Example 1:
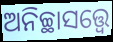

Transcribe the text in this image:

ଅନିଚ୍ଛାସତ୍ତ୍ବେ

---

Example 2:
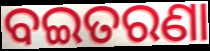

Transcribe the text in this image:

ବଇତରଣା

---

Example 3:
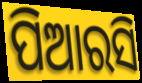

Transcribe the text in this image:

ପିଆରସି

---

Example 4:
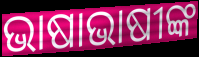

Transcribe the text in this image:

ଭାଷାଭାଷୀଙ୍କ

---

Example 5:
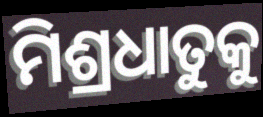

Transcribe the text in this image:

ମିଶ୍ରଧାତୁକୁ